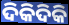
ଦିକିଦିକି